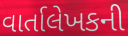
વાર્તાલેખકની